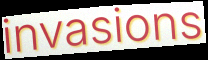
invasions